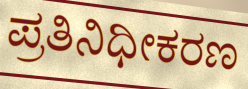
ಪ್ರತಿನಿಧೀಕರಣ